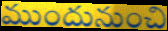
ముందునుంచి